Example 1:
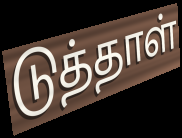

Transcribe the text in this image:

டுத்தாள்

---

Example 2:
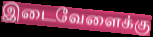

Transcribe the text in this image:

இடைவேளைக்கு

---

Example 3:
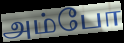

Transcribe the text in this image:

அம்போ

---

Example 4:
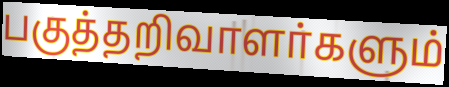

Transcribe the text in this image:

பகுத்தறிவாளர்களும்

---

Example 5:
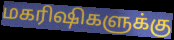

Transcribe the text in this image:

மகரிஷிகளுக்கு